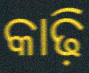
କାଢ଼ି